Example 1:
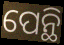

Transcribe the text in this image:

ପେନ୍ଥି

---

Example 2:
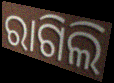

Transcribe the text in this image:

ରାଗିଲି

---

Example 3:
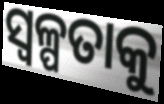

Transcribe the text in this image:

ସ୍ଵଳ୍ପତାକୁ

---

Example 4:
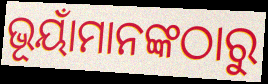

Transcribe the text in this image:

ଭୂୟାଁମାନଙ୍କଠାରୁ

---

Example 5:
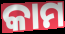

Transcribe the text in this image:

କାମ